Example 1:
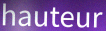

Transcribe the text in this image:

hauteur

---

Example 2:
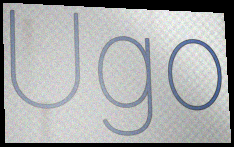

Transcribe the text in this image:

Ugo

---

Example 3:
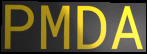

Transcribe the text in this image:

PMDA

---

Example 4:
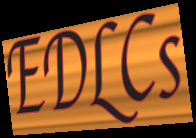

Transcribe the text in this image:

EDLCs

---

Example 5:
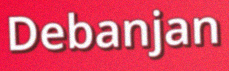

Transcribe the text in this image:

Debanjan